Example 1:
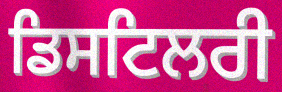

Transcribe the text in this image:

ਡਿਸਟਿਲਰੀ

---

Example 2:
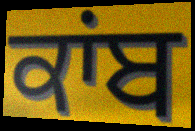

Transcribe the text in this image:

ਕਾਂਬ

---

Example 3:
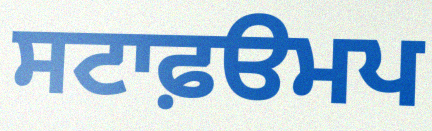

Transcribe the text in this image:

ਸਟਾਫ਼ੳਮਪ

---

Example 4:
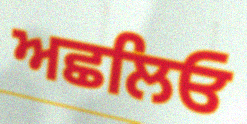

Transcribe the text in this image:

ਅਛਲਿਓ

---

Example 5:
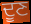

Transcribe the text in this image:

ਦੂਣ